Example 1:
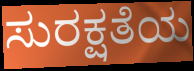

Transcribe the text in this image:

ಸುರಕ್ಷತೆಯ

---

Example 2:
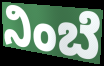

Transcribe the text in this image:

ನಿಂಬೆ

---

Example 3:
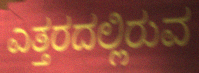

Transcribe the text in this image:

ಎತ್ತರದಲ್ಲಿರುವ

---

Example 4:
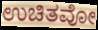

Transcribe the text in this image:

ಉಚಿತವೋ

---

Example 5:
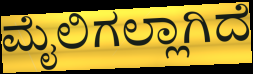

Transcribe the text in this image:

ಮೈಲಿಗಲ್ಲಾಗಿದೆ